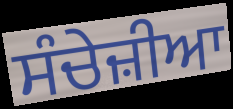
ਸੰਚੇਜ਼ੀਆ